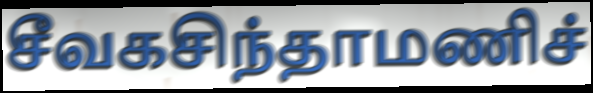
சீவகசிந்தாமணிச்